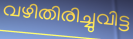
വഴിതിരിച്ചുവിട്ട